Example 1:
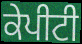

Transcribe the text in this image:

ਕੇਪੀਟੀ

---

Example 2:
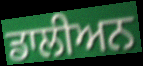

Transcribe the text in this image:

ਡਾਲੀਅਨ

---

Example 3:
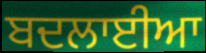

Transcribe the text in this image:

ਬਦਲਾਈਆ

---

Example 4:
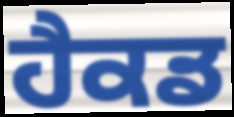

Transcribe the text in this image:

ਹੈਕਡ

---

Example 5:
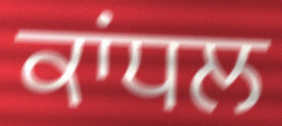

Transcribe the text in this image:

ਕਾਂਧਲ